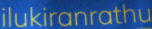
ilukiranrathu